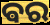
ଵର